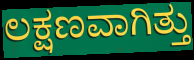
ಲಕ್ಷಣವಾಗಿತ್ತು